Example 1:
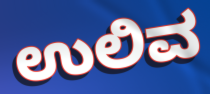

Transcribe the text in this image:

ಉಲಿವ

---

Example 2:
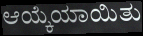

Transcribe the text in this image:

ಆಯ್ಕೆಯಾಯಿತು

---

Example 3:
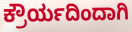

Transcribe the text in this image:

ಕ್ರೌರ್ಯದಿಂದಾಗಿ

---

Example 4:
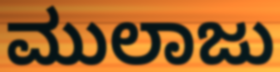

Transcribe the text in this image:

ಮುಲಾಜು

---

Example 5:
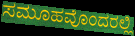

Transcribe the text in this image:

ಸಮೂಹವೊಂದರಲ್ಲಿ